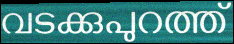
വടക്കുപുറത്ത്